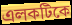
এলকটিকে